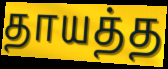
தாயத்த